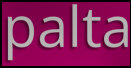
palta